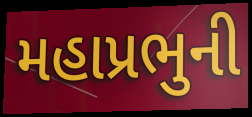
મહાપ્રભુની